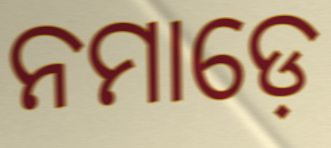
ନମାଡ଼େ